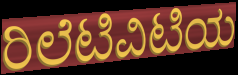
ರಿಲೆಟಿವಿಟಿಯ